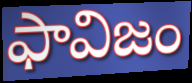
ఫావిజం